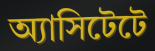
অ্যাসিটেটে